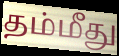
தம்மீது